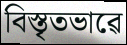
বিস্তৃতভাৱে